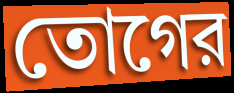
তোগের